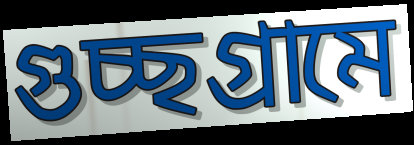
গুচ্ছগ্রামে